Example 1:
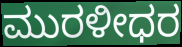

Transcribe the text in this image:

ಮುರಳೀಧರ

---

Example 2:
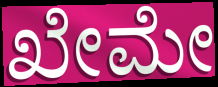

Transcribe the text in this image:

ಖೇಮೇ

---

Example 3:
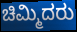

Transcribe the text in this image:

ಚಿಮ್ಮಿದರು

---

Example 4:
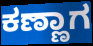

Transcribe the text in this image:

ಕಣ್ಣಾಗ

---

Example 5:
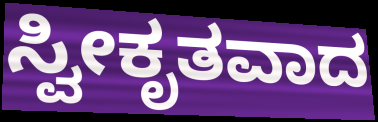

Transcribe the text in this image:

ಸ್ವೀಕೃತವಾದ